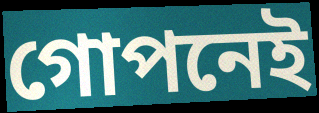
গোপনেই